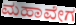
ಮಹಾವೇಗ